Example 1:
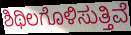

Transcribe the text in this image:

ಶಿಥಿಲಗೊಳಿಸುತ್ತಿವೆ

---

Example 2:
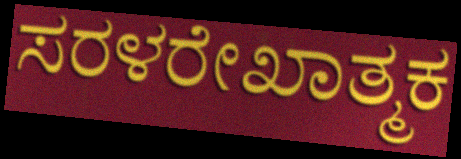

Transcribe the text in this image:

ಸರಳರೇಖಾತ್ಮಕ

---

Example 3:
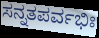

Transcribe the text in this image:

ಸನ್ನತಪರ್ವಭಿಃ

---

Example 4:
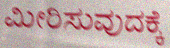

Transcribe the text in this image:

ಮೀರಿಸುವುದಕ್ಕೆ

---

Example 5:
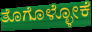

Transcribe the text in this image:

ತೊಗೊಳ್ಳೋಕೆ